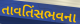
તાવતિંસભવના